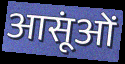
आसूंओं